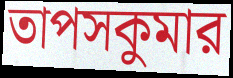
তাপসকুমার